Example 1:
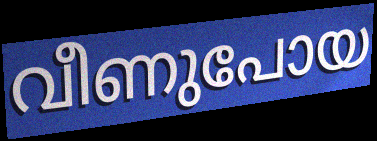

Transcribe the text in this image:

വീണുപോയ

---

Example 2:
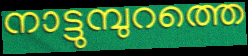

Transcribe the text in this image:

നാട്ടുമ്പുറത്തെ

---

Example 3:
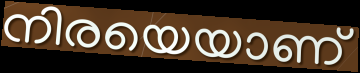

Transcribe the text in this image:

നിരയെയാണ്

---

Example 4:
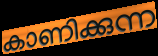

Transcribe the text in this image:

കാണിക്കുന്ന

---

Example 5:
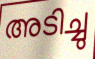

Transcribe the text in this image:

അടിച്ചു